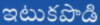
ఇటుకపొడి